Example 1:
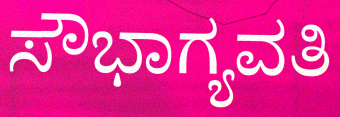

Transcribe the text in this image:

ಸೌಭಾಗ್ಯವತಿ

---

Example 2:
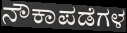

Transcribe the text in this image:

ನೌಕಾಪಡೆಗಳ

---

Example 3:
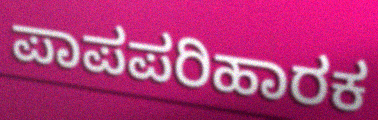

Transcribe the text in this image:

ಪಾಪಪರಿಹಾರಕ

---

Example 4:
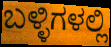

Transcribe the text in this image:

ಬಳ್ಳಿಗಳಲ್ಲಿ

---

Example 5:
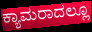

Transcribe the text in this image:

ಕ್ಯಾಮರಾದಲ್ಲೂ